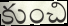
కుంచి